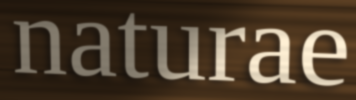
naturae